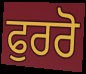
ਫੁਰਰੋ